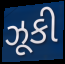
ઝૂકી